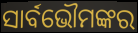
ସାର୍ବଭୌମଙ୍କର